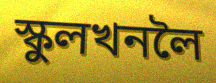
স্কুলখনলৈ